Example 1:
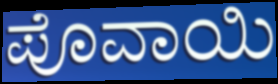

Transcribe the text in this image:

ಪೊವಾಯಿ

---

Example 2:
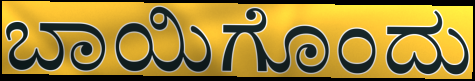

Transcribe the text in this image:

ಬಾಯಿಗೊಂದು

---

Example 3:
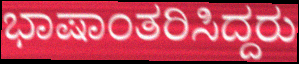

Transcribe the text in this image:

ಭಾಷಾಂತರಿಸಿದ್ದರು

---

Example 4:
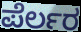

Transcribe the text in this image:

ಪೆರ್ಲರ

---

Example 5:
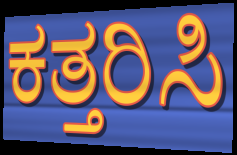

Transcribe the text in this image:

ಕತ್ತರಿಸಿ